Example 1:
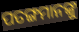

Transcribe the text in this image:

ପତଙ୍ଗମାନଙ୍କୁ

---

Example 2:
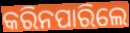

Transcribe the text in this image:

କରିନପାରିଲେ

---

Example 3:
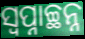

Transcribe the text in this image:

ସ୍ଵପ୍ନାଚ୍ଛନ୍ନ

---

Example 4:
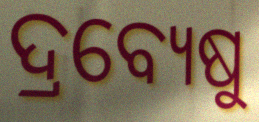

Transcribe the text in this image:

ଦ୍ରବ୍ୟେଷୁ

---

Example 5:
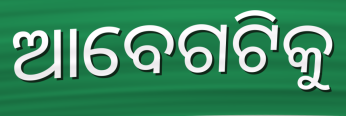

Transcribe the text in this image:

ଆବେଗଟିକୁ